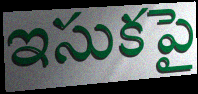
ఇసుకపై